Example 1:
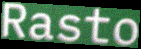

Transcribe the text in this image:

Rasto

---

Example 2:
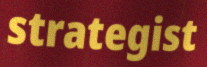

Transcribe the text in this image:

strategist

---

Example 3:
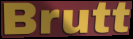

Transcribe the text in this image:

Brutt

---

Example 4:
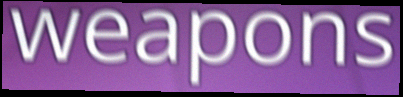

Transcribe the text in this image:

weapons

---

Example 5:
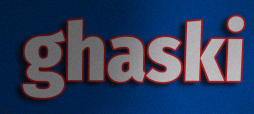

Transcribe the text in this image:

ghaski